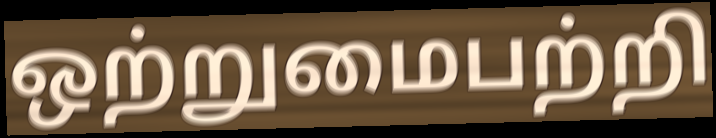
ஒற்றுமைபற்றி